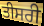
ਤੀਸਰੀ